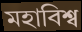
মহাবিশ্ব